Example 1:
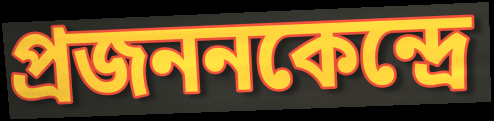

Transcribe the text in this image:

প্রজননকেন্দ্রে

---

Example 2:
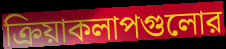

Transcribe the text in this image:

ক্রিয়াকলাপগুলোর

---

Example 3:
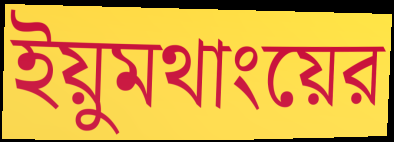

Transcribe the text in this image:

ইয়ুমথাংয়ের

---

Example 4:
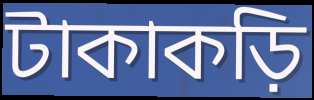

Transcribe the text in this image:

টাকাকড়ি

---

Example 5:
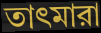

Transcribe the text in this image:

তাৎমারা